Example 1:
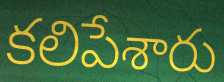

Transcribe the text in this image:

కలిపేశారు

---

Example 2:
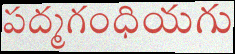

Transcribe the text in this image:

పద్మగంధియగు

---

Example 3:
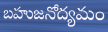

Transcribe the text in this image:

బహుజనోద్యమం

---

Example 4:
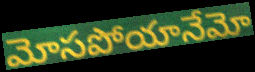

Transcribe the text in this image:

మోసపోయానేమో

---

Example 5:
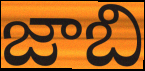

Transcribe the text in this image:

జాబి